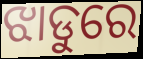
ଝାଡୁରେ